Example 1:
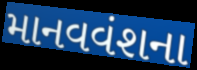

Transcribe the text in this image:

માનવવંશના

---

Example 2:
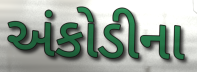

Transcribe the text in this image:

અંકોડીના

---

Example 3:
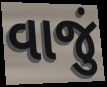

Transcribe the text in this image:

વાજું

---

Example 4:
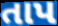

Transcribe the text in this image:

તાપ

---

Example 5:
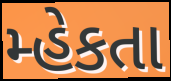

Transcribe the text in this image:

મ્હેકતા